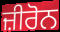
ਜ਼ੀਰੋਨ